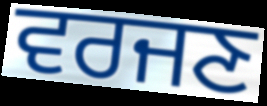
ਵਰਜਣ